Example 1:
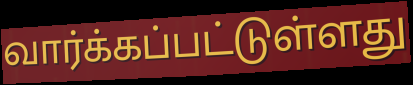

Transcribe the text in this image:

வார்க்கப்பட்டுள்ளது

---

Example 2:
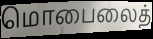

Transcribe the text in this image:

மொபைலைத்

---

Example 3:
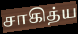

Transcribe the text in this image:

சாகித்ய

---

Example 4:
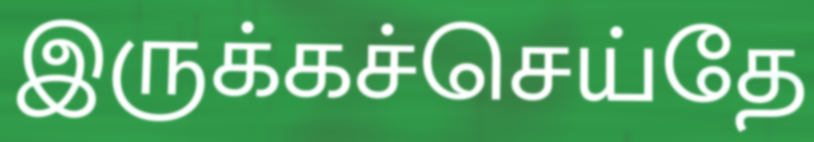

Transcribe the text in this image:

இருக்கச்செய்தே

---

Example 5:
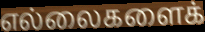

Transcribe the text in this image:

எல்லைகளைக்